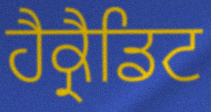
ਹੈਕ੍ਰੈਡਿਟ